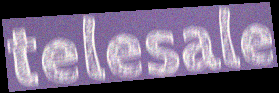
telesale